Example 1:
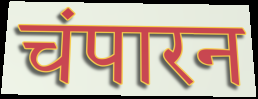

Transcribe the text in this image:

चंपारन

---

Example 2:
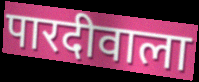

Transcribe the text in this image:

पारदीवाला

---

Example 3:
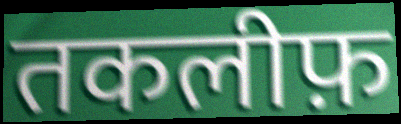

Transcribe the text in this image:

तकलीफ़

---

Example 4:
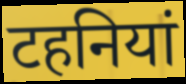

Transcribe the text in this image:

टहनियां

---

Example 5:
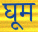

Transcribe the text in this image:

घूम